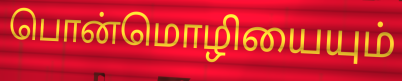
பொன்மொழியையும்